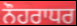
ਨੌਹਰਾਧਰ